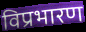
विप्रभारण